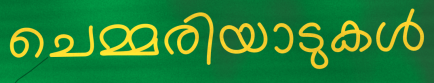
ചെമ്മരിയാടുകൾ